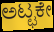
ಅಟ್ಟಕೇ